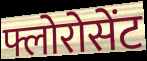
फ्लोरोसेंट